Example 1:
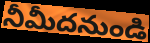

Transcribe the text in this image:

నీమీదనుండి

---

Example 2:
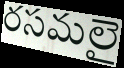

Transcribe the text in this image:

రసమలై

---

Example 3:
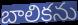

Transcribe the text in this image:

బాలికను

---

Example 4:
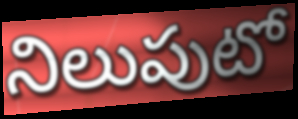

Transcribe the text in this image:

నిలుపుటో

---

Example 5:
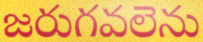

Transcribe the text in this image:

జరుగవలెను